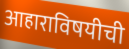
आहाराविषयीची